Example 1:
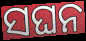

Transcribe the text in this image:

ସଘନ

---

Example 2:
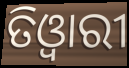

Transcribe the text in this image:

ତିଓ୍ଵାରୀ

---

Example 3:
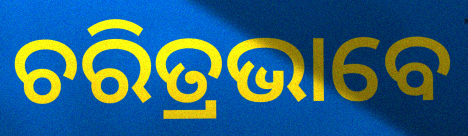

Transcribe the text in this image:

ଚରିତ୍ରଭାବେ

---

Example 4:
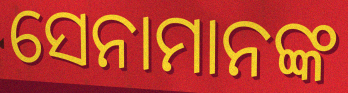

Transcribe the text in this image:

ସେନାମାନଙ୍କ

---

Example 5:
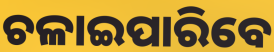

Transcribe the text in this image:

ଚଳାଇପାରିବେ